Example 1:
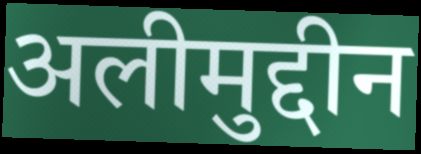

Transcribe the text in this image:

अलीमुद्दीन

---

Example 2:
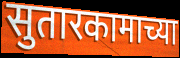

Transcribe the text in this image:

सुतारकामाच्या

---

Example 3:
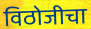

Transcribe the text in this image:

विठोजीचा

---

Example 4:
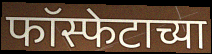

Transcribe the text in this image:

फॉस्फेटाच्या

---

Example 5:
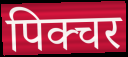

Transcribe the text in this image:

पिक्चर